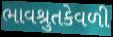
ભાવશ્રુતકેવળી